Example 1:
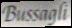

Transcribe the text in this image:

Bussagli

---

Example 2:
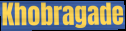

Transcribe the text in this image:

Khobragade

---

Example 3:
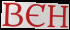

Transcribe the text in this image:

BEH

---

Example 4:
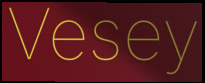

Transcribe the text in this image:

Vesey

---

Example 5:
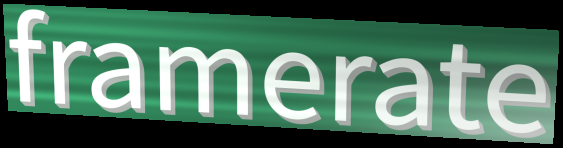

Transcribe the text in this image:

framerate